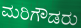
ಮರಿಗೌಡರು